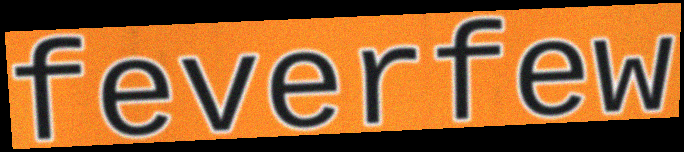
feverfew